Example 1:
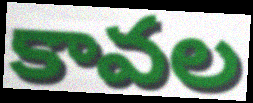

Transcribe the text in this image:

కావల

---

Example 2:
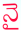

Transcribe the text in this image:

నై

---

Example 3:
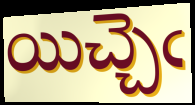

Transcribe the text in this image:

యిచ్చెఁ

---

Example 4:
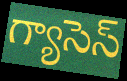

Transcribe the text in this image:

గ్యాసెస్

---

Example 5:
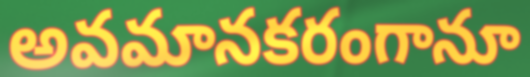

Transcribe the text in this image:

అవమానకరంగానూ